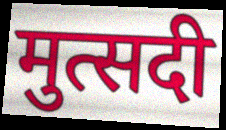
मुत्सदी